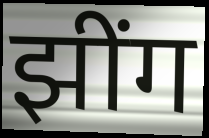
झींग